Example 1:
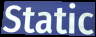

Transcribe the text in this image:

Static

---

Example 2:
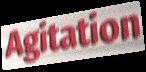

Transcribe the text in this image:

Agitation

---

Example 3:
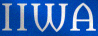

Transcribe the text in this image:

IIWA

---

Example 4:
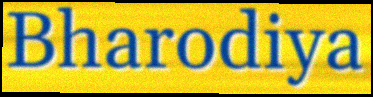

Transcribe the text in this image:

Bharodiya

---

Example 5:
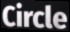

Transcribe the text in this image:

Circle